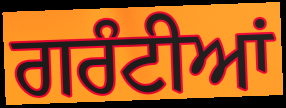
ਗਰੰਟੀਆਂ